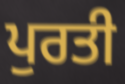
ਪੁਰਤੀ